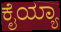
ಕೈಯ್ಯಾ